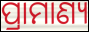
ପ୍ରାମାଣ୍ୟ